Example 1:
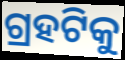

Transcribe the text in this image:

ଗ୍ରହଟିକୁ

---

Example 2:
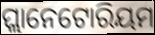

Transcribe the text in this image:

ପ୍ଲାନେଟୋରିୟମ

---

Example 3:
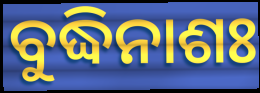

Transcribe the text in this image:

ବୁଦ୍ଧିନାଶଃ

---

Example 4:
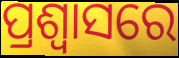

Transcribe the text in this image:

ପ୍ରଶ୍ଵାସରେ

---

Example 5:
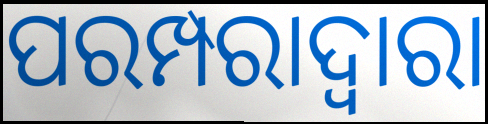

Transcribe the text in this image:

ପରମ୍ପରାଦ୍ବାରା